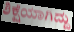
ಶಿಕ್ಷೆಯಾಗಿದ್ದು